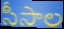
సీసాల